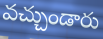
వచ్చుండారు